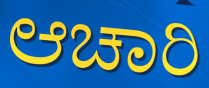
ಆಚಾರಿ